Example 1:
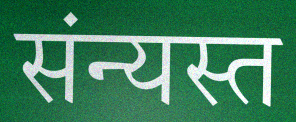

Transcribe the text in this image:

संन्यस्त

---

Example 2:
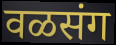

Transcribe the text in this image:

वळसंग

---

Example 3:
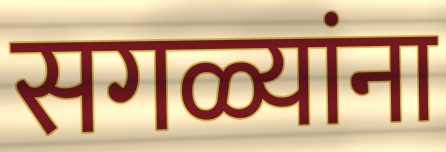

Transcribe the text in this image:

सगळ्यांना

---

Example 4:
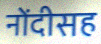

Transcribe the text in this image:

नोंदीसह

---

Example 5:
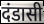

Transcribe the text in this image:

दंडासी